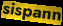
sispann